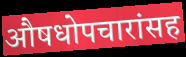
औषधोपचारांसह